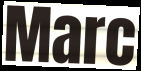
Marc